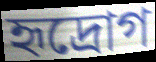
হৃদ্রোগ